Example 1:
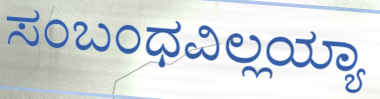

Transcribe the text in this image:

ಸಂಬಂಧವಿಲ್ಲಯ್ಯಾ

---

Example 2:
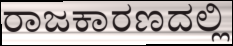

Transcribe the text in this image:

ರಾಜಕಾರಣದಲ್ಲಿ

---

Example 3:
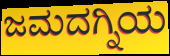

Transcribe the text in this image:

ಜಮದಗ್ನಿಯ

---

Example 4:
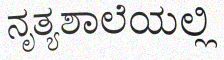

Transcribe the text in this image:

ನೃತ್ಯಶಾಲೆಯಲ್ಲಿ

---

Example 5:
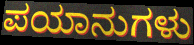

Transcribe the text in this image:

ಪಯಾನುಗಳು